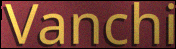
Vanchi